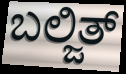
ಬಲ್ಜಿತ್